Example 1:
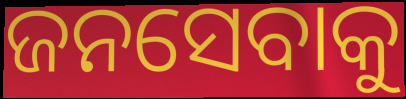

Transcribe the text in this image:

ଜନସେବାକୁ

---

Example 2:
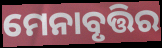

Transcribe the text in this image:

ମେନାବୃତ୍ତିର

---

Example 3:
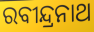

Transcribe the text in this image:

ରବୀନ୍ଦ୍ରନାଥ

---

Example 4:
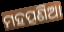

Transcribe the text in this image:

ମହତ୍ପଣିଆ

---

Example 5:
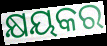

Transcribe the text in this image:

କ୍ଷୟକର